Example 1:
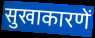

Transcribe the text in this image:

सुखाकारणें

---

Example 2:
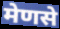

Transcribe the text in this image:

मेणसे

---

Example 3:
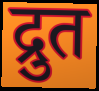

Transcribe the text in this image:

द्रुत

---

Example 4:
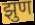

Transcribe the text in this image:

झुण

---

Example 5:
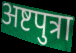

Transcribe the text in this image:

अष्टपुत्रा